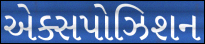
એક્સપોઝિશન